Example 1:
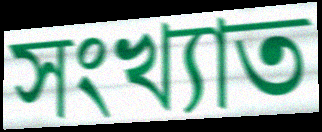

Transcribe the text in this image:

সংখ্যাত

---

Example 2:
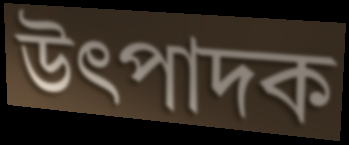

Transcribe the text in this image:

উৎপাদক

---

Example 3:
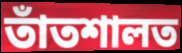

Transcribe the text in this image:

তাঁতশালত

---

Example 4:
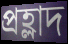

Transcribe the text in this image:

প্ৰহ্লাদ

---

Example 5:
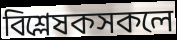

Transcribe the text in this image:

বিশ্লেষকসকলে